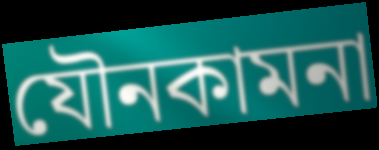
যৌনকামনা